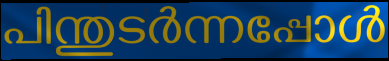
പിന്തുടർന്നപ്പോൾ